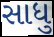
સાધુ